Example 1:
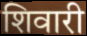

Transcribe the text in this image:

शिवारी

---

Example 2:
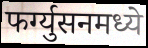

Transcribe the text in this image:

फर्ग्युसनमध्ये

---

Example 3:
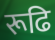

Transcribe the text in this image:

रूढि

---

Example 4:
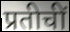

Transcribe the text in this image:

प्रतीचीं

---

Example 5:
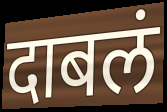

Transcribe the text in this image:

दाबलं